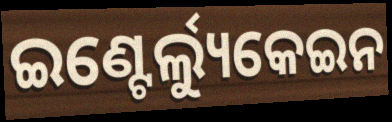
ଇଣ୍ଟେର୍ଲ୍ୟୁକେଇନ